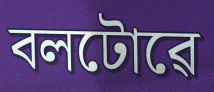
বলটোৱে